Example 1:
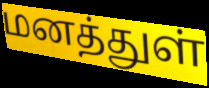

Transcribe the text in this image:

மனத்துள்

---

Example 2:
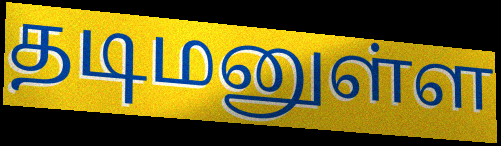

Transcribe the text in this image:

தடிமனுள்ள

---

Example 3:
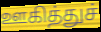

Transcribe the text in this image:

ஊகித்துச்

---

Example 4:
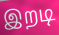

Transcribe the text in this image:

இறடி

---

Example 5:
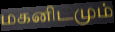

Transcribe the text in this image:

மகனிடமும்